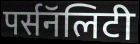
पर्सनॅलिटी